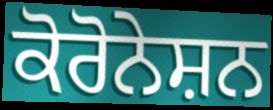
ਕੋਰੋਨੇਸ਼ਨ